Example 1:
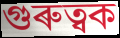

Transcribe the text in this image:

গুৰুত্বক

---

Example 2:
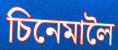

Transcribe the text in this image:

চিনেমালৈ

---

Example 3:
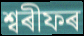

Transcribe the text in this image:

শ্বৰীফৰ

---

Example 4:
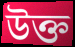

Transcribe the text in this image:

উক্ত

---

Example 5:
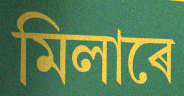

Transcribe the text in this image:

মিলাৰে